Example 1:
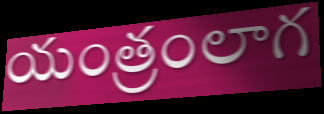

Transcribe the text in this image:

యంత్రంలాగ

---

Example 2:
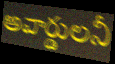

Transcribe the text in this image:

అవార్డులనీ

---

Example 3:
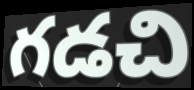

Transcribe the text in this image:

గడచి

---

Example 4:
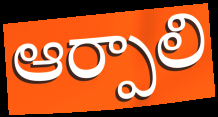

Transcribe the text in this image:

ఆర్పాలి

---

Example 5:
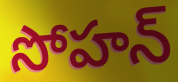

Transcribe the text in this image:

సోహన్